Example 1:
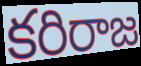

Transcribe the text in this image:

కరిరాజ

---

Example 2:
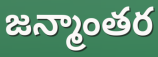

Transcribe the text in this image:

జన్మాంతర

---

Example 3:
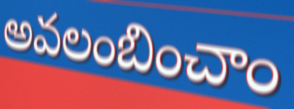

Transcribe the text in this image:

అవలంబించాం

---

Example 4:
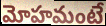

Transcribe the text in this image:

మోహమంటే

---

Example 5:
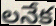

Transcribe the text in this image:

లనేక